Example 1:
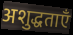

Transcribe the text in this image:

अशुद्धताएँ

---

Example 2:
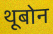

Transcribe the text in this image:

थूबोन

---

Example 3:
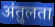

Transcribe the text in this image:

अंतुलता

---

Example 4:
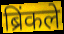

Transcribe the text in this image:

ब्रिंकले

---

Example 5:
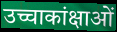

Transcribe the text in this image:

उच्चाकांक्षाओं